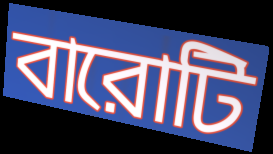
বারোটি